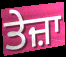
ਤੇਜ਼ਾ